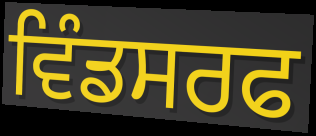
ਵਿੰਡਸਰਫ